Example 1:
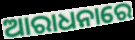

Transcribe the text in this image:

ଆରାଧନାରେ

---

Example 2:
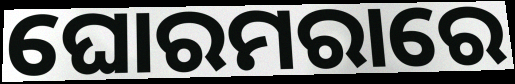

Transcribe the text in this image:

ଘୋରମରାରେ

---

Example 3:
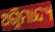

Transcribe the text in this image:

ଅଗ୍ନିମାନ୍ଦ୍ୟ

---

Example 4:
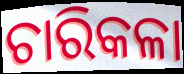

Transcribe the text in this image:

ଚାରିକଳା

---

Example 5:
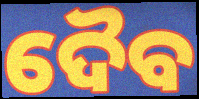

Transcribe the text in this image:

ଦୈବ